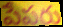
పేపరు